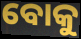
ବୋକୁ